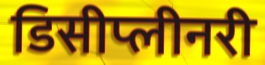
डिसीप्लीनरी